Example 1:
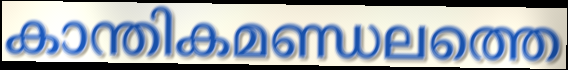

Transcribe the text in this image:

കാന്തികമണ്ഡലത്തെ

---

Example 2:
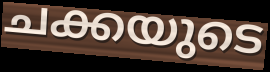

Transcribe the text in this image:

ചക്കയുടെ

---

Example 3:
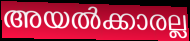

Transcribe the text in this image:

അയൽക്കാരല്ല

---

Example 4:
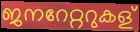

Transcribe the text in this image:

ജനറേറ്ററുകള്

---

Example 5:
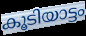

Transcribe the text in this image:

കൂടിയാട്ടം